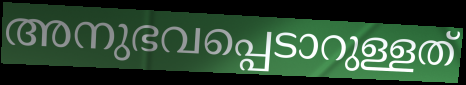
അനുഭവപ്പെടാറുള്ളത്